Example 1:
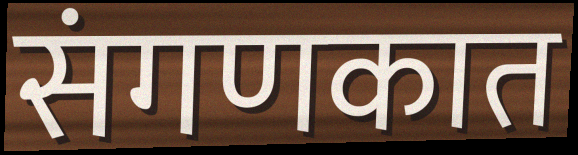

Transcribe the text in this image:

संगणकात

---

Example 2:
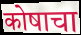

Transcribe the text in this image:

कोषाचा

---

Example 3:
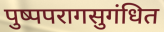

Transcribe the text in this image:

पुष्पपरागसुगंधित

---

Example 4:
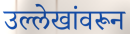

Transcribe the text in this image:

उल्लेखांवरून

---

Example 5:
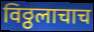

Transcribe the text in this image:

विठ्ठलाचाच